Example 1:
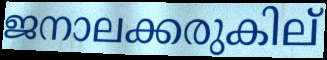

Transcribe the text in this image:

ജനാലക്കരുകില്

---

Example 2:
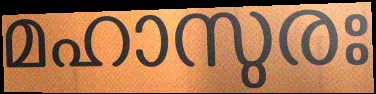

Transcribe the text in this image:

മഹാസുരഃ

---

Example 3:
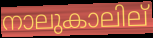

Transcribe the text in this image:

നാലുകാലില്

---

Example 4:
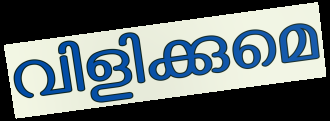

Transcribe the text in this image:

വിളിക്കുമെ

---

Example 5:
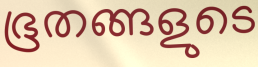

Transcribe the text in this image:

ഭൂതങ്ങളുടെ